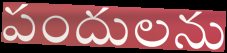
పందులను